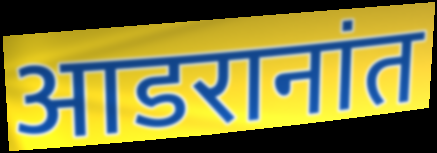
आडरानांत